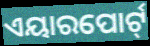
ଏୟାରପୋର୍ଟ୍